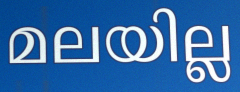
മലയില്ല